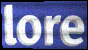
lore